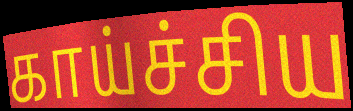
காய்ச்சிய